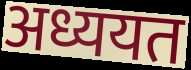
अध्ययत